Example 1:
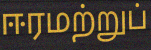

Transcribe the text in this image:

ஈரமற்றுப்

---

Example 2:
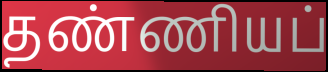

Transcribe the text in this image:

தண்ணியப்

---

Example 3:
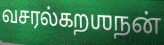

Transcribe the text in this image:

வசரல்கறஶநன்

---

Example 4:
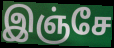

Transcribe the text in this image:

இஞ்சே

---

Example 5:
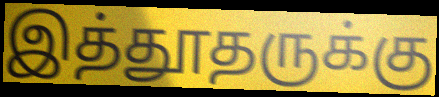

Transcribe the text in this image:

இத்தூதருக்கு